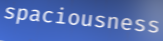
spaciousness